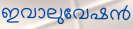
ഇവാലുവേഷൻ